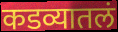
कडव्यातलं